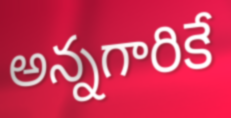
అన్నగారికే